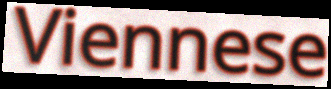
Viennese